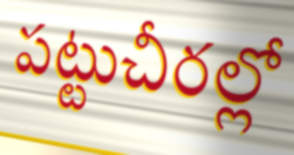
పట్టుచీరల్లో